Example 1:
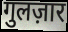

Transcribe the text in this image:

गुलज़ार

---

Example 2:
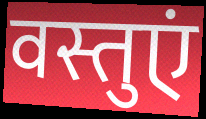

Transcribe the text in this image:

वस्तुएं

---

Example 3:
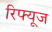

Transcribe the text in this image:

रिफ्यूज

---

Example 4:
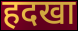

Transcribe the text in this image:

हदखा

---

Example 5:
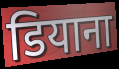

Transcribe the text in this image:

डियाना